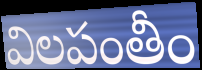
విలపంతీం